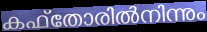
കഫ്തോരിൽനിന്നും